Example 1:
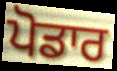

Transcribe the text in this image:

ਪੋਡਾਰ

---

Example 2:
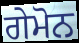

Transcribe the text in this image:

ਗੇਮੋਨ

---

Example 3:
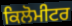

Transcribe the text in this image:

ਕਿਲੋਮੀਟਰ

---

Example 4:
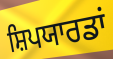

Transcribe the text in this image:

ਸ਼ਿਪਯਾਰਡਾਂ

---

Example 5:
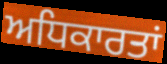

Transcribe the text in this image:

ਅਧਿਕਾਰਤਾਂ